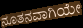
ನೂತನವಾಗಿಯೇ